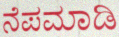
ನೆಪಮಾಡಿ